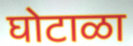
घोटाळा